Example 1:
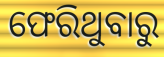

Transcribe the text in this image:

ଫେରିଥୁବାରୁ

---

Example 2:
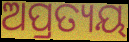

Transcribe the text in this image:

ଅପ୍ରତ୍ୟୟ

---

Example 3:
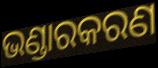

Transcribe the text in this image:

ଭଣ୍ଡାରକରଣ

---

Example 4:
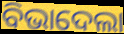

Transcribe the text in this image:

ବିଭାଦେଲା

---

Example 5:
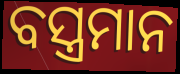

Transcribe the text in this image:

ବସ୍ତ୍ରମାନ